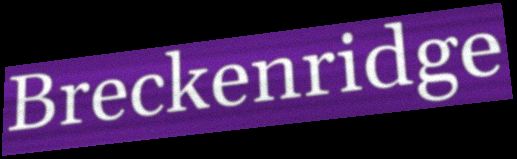
Breckenridge